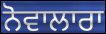
ਨੋਵਾਲਾਰਾ